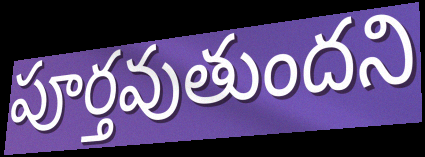
పూర్తవుతుందని